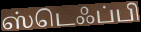
ஸ்டெஃப்பி